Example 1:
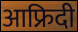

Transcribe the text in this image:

आफ्रिदी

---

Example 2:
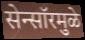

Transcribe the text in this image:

सेन्सॉरमुळे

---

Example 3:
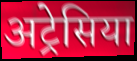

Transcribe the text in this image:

अट्रेसिया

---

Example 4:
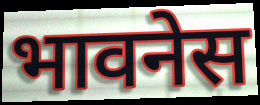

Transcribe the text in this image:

भावनेस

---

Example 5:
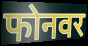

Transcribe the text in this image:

फोनवर